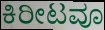
ಕಿರೀಟವೂ